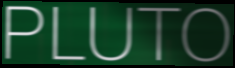
PLUTO